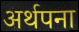
अर्थपना